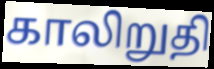
காலிறுதி